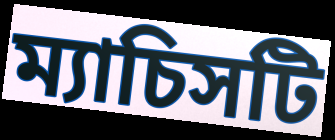
ম্যাচিসটি